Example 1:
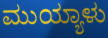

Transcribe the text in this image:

ಮುಯ್ಯಾಳು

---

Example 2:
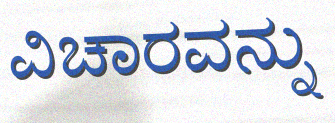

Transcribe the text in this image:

ವಿಚಾರವನ್ನು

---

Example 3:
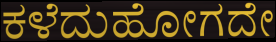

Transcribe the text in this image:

ಕಳೆದುಹೋಗದೇ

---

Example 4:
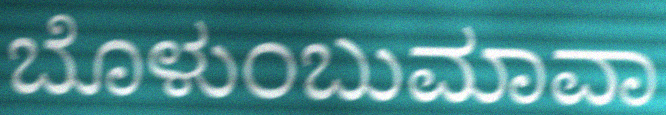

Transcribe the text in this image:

ಬೊಳುಂಬುಮಾವಾ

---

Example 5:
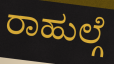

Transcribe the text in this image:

ರಾಹುಲ್ಗೆ